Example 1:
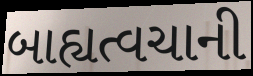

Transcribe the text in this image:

બાહ્યત્વચાની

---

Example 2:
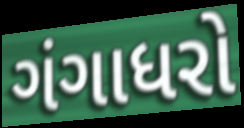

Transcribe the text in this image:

ગંગાધરો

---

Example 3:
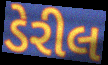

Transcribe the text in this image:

ડેરીલ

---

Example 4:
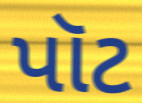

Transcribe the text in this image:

પૉટ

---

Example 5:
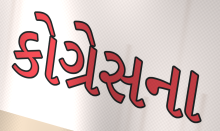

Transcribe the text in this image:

કોગ્રેસના